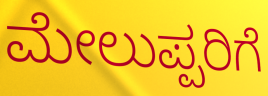
ಮೇಲುಪ್ಪರಿಗೆ